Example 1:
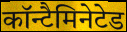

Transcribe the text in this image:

कॉन्टैमिनेटेड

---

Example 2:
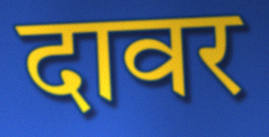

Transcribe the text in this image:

दावर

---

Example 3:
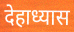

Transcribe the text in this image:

देहाध्यास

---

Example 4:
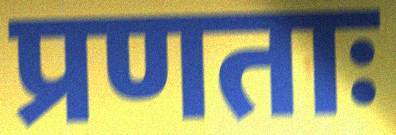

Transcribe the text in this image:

प्रणताः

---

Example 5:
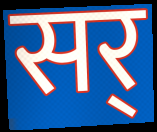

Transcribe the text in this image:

सर्